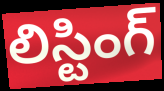
లిస్టింగ్